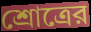
শ্রোত্রের